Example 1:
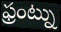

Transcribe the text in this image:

ఫ్రంట్ను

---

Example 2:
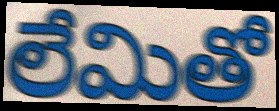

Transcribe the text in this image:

లేమితో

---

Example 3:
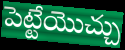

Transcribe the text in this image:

పెట్టేయొచ్చు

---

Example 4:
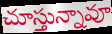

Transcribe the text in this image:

చూస్తున్నావూ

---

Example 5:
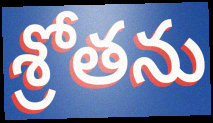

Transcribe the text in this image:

శ్రోతను